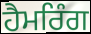
ਹੈਮਰਿੰਗ